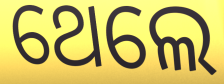
ଥେଲେ